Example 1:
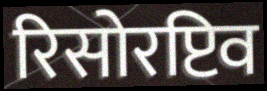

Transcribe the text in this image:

रिसोरप्टिव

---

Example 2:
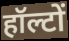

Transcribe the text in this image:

हॉल्टों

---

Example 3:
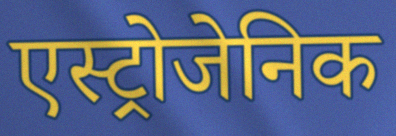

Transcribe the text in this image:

एस्ट्रोजेनिक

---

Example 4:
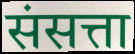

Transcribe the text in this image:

संसत्ता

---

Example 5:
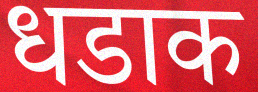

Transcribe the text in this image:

धडाक